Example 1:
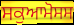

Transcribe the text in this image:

ਸਕੁਆਮੋਸਸ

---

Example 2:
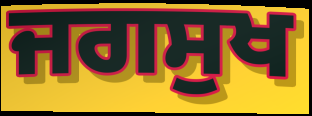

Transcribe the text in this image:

ਜਗਸੁਖ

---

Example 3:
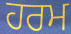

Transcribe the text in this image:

ਹਰਮ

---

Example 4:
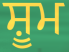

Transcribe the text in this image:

ਸ਼ੂਮ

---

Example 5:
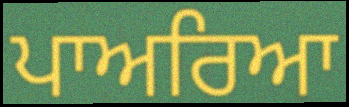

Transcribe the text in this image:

ਪਾਅਰਿਆ